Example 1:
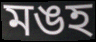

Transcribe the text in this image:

মঙহ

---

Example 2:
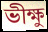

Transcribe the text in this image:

ভীক্ষু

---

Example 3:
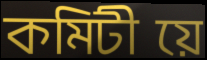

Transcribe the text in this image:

কমিটীয়ে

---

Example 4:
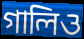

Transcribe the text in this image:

গালিও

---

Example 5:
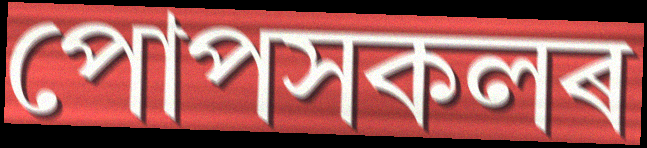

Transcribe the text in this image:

পোপসকলৰ